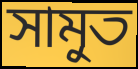
সামুত